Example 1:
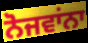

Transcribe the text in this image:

ਨੋਜਵਾਂਨਾ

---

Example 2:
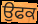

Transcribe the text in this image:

ਉਫਕ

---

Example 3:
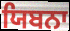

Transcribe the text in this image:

ਯਿਬਨਾ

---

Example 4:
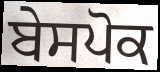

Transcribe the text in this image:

ਬੇਸਪੋਕ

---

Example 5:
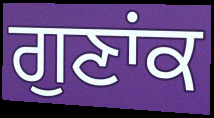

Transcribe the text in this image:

ਗੁਣਾਂਕ